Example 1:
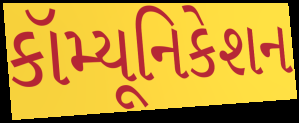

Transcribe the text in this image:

કૉમ્યૂનિકેશન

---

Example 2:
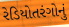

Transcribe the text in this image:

રેડિયોતરંગોનું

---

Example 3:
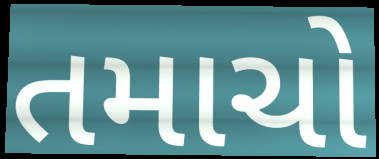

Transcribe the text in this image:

તમાચો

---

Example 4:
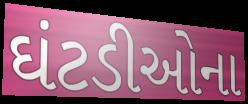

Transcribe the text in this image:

ઘંટડીઓના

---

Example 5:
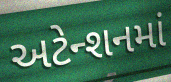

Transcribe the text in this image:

અટેન્શનમાં